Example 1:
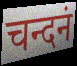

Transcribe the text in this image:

चन्दनं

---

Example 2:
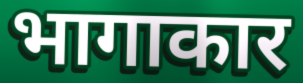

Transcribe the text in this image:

भागाकार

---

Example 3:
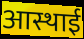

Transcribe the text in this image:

आस्थाई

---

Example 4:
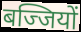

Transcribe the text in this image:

बज्जियों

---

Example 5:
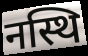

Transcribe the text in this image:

नस्थि